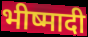
भीष्मादी